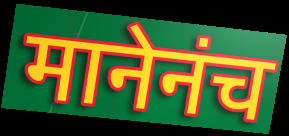
मानेनंच